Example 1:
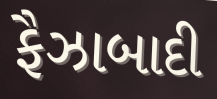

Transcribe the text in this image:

ફૈઝાબાદી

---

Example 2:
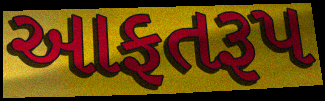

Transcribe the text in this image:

આફતરૂપ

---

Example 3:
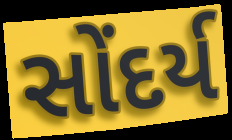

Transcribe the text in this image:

સોંદર્ય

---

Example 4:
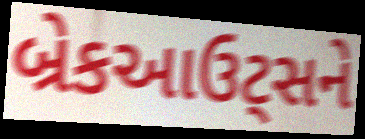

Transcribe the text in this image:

બ્રેકઆઉટ્સને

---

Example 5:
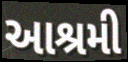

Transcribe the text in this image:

આશ્રમી